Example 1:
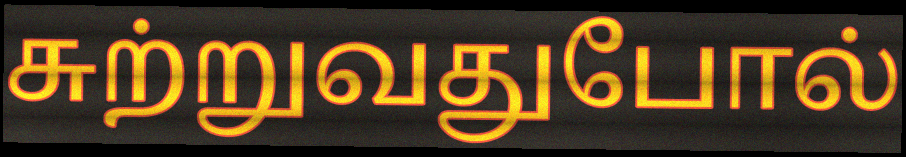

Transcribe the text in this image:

சுற்றுவதுபோல்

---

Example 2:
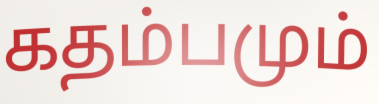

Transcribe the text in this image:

கதம்பமும்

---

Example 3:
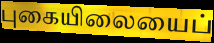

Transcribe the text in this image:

புகையிலையைப்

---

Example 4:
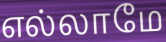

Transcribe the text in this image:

எல்லாமே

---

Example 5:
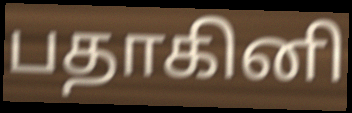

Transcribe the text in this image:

பதாகினி